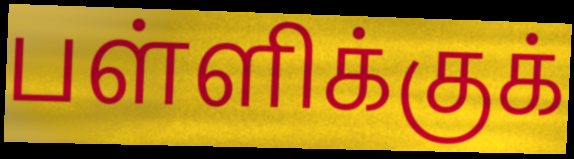
பள்ளிக்குக்